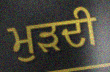
ਮੁੜਦੀ